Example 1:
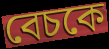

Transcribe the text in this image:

বেচকে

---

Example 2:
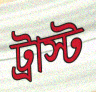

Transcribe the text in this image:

ট্রাস্ট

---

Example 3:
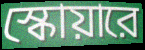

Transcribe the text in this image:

স্কোয়ারে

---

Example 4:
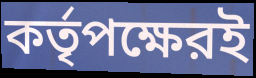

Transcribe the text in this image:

কর্তৃপক্ষেরই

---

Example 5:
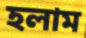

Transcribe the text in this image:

হলাম